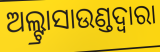
ଅଲ୍ଟ୍ରାସାଉଣ୍ଡଦ୍ୱାରା